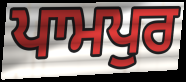
ਪਾਮਪੁਰ